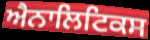
ਐਨਾਲਿਟਿਕਸ